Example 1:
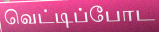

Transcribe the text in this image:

வெட்டிப்போட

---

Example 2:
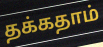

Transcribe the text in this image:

தக்கதாம்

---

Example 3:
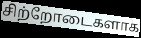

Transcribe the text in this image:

சிற்றோடைகளாக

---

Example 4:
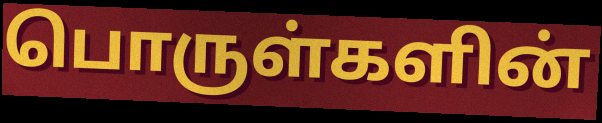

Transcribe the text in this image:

பொருள்களின்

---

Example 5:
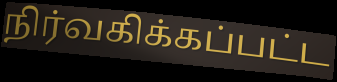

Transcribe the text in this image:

நிர்வகிக்கப்பட்ட